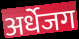
अर्धेजग